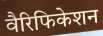
वैरिफिकेशन